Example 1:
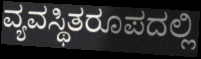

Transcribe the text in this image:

ವ್ಯವಸ್ಥಿತರೂಪದಲ್ಲಿ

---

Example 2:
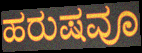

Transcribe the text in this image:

ಹರುಷವೂ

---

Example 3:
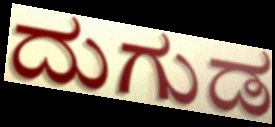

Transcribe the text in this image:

ದುಗುಡ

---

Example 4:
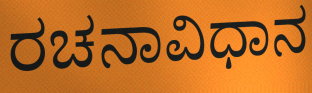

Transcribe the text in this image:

ರಚನಾವಿಧಾನ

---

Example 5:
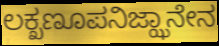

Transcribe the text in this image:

ಲಕ್ಖಣೂಪನಿಜ್ಝಾನೇನ